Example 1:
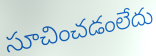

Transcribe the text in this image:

సూచించడంలేదు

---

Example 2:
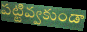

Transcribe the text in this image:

పట్టివ్వకుండా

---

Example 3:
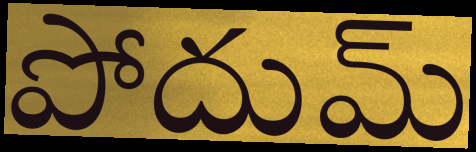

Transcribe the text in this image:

పోదుమ్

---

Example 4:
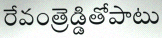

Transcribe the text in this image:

రేవంత్రెడ్డితోపాటు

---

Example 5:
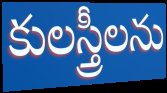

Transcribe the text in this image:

కులస్త్రీలను